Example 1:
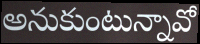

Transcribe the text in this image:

అనుకుంటున్నావో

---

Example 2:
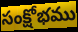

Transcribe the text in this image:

సంక్షోభము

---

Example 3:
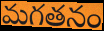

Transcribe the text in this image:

మగతనం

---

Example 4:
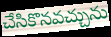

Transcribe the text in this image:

చేసికొనవచ్చును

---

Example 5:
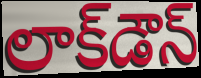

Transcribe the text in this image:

లాక్‌డౌన్